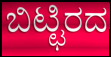
ಬಿಟ್ಟಿರದ